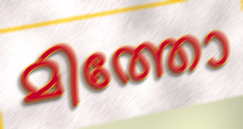
മിത്തോ